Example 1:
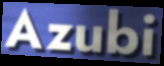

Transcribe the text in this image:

Azubi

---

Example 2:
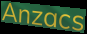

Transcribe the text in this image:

Anzacs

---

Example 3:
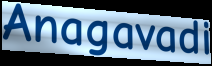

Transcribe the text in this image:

Anagavadi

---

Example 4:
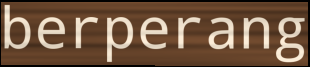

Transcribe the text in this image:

berperang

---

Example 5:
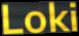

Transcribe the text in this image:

Loki